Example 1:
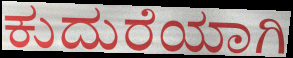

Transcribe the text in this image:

ಕುದುರೆಯಾಗಿ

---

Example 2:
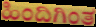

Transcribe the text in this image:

ಹಿಂದಿಗಿಂತ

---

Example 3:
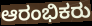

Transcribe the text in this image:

ಆರಂಭಿಕರು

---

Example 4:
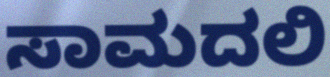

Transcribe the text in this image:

ಸಾಮದಲಿ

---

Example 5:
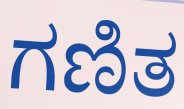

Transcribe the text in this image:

ಗಣಿತ